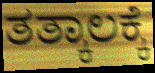
ತತ್ಕಾಲಕ್ಕೆ